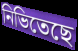
নিভিতেছে